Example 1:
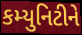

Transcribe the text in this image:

કમ્યુનિટીને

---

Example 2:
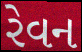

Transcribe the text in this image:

રેવન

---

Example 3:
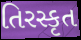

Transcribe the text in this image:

તિરસ્કૃત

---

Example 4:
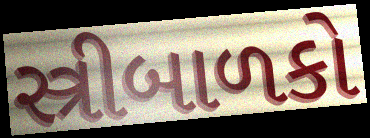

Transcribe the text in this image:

સ્ત્રીબાળકો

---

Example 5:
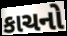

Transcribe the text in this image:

કાચનો